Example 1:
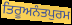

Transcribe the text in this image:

ਤਿਰੂਅਨੰਤਪੁਰਮ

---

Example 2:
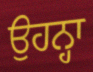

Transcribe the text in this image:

ਉਹਨ੍ਹਾ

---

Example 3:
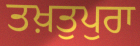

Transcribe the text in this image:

ਤਖ਼ਤੁਪੁਰਾ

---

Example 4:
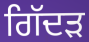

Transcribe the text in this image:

ਗਿੱਦਡ਼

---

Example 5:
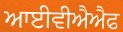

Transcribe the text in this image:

ਆਈਵੀਐਐਫ